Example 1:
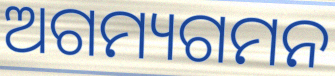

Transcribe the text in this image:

ଅଗମ୍ୟଗମନ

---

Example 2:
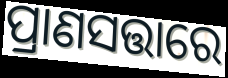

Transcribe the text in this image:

ପ୍ରାଣସତ୍ତାରେ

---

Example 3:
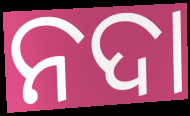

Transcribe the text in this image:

ନଦା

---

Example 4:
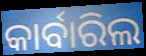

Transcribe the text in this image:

କାର୍ବାରିଲ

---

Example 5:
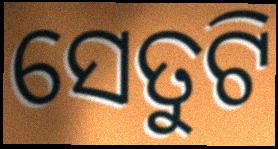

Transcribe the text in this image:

ସେତୁଟି